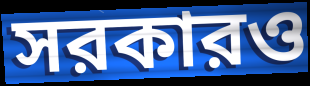
সরকারও